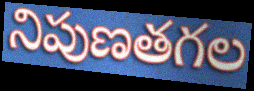
నిపుణతగల